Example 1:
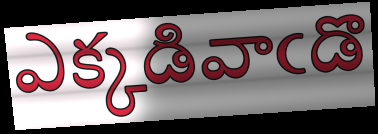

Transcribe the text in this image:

ఎక్కడివాఁడొ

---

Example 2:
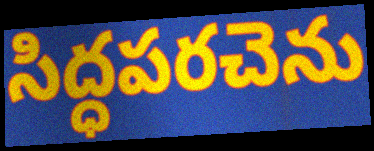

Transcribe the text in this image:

సిద్ధపరచెను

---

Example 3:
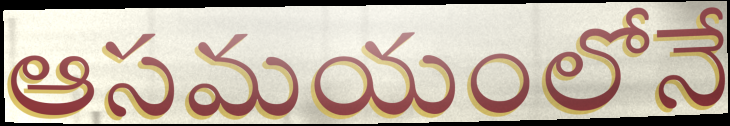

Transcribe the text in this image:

ఆసమయంలోనే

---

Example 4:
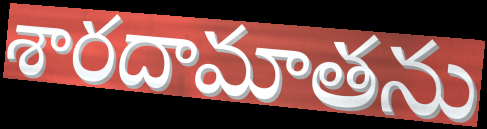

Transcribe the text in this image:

శారదామాతను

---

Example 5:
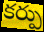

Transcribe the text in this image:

కర్పు